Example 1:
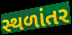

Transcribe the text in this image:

સ્થળાંતર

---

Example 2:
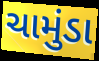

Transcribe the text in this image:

ચામુંડા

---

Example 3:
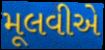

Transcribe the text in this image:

મૂલવીએ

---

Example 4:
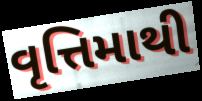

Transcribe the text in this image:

વૃત્તિમાથી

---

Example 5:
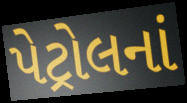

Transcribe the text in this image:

પેટ્રોલનાં